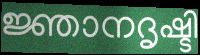
ജ്ഞാനദൃഷ്ടി